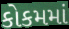
કોકમમાં